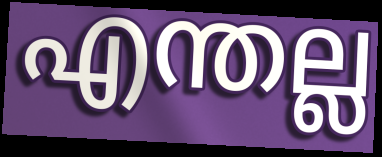
എന്തല്ല